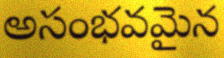
అసంభవమైన